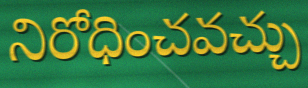
నిరోధించవచ్చు